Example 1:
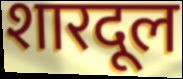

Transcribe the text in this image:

शारदूल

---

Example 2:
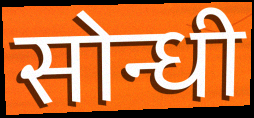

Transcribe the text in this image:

सोन्धी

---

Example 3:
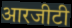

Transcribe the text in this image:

आरजीटी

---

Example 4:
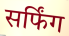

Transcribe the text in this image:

सर्फिंग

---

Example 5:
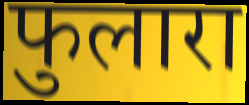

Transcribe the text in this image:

फुलारा